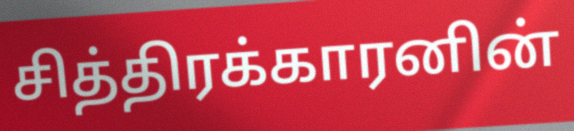
சித்திரக்காரனின்